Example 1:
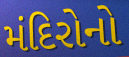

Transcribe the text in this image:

મંદિરોનો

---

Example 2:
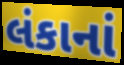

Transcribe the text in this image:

લંકાનાં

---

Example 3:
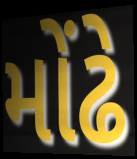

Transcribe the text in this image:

મોંઢે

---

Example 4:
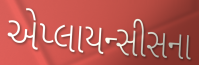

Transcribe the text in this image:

એપ્લાયન્સીસના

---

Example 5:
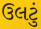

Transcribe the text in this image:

ઉલટું